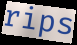
rips